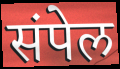
संपेल